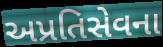
અપ્રતિસેવના